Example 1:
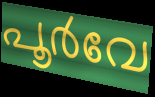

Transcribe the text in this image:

പൂർവേ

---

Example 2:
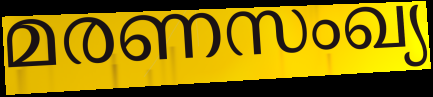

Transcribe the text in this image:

മരണസംഖ്യ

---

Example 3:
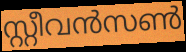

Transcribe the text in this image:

സ്റ്റീവൻസൺ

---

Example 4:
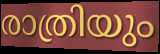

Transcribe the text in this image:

രാത്രിയും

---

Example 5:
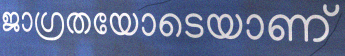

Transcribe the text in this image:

ജാഗ്രതയോടെയാണ്